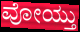
ವೋಯ್ತು